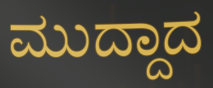
ಮುದ್ದಾದ